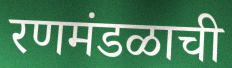
रणमंडळाची